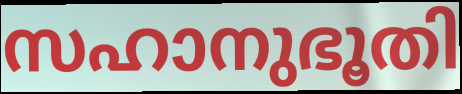
സഹാനുഭൂതി